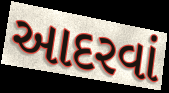
આદરવાં